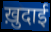
ख़ुदाई